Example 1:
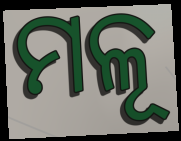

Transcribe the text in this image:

ମଳୂ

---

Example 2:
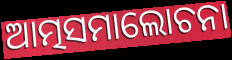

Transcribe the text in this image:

ଆତ୍ମସମାଲୋଚନା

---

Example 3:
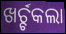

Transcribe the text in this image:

ଖର୍ଚ୍ଚକଲା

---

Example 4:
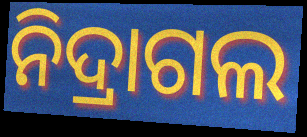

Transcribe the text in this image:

ନିଦ୍ରାଗଲ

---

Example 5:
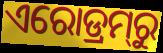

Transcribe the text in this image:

ଏରୋଡ୍ରମ୍‍ରୁ